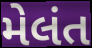
મેલંત